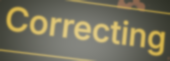
Correcting